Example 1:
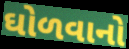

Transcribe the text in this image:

ઘોળવાનો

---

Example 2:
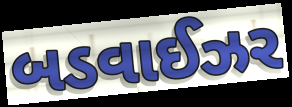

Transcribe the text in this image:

બડવાઈઝર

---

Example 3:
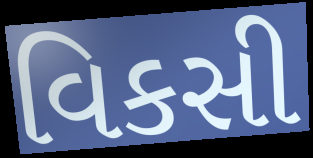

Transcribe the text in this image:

વિકસી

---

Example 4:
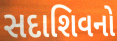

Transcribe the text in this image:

સદાશિવનો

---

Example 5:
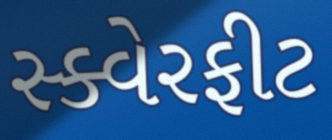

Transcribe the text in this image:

સ્ક્વેરફીટ